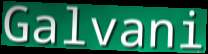
Galvani